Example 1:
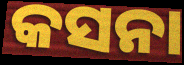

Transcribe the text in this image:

କସନା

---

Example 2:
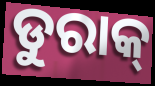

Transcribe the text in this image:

ଡୁରାକ୍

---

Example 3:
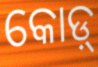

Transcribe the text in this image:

କୋଡ଼୍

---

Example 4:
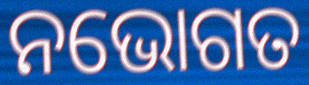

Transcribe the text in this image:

ନଭୋଗତ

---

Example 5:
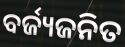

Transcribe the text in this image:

ବର୍ଜ୍ୟଜନିତ